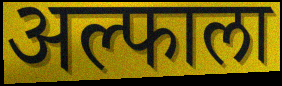
अल्फाला